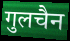
गुलचैन